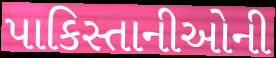
પાકિસ્તાનીઓની